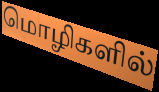
மொழிகளில்